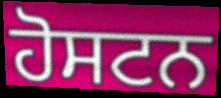
ਹੋਸਟਨ